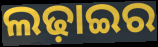
ଲଢ଼ାଇର